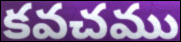
కవచము